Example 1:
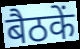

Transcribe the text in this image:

बैठकें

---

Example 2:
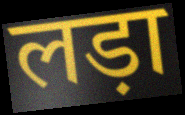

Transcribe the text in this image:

लड़ा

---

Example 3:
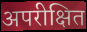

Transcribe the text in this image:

अपरीक्षित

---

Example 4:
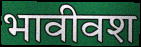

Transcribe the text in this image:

भावीवश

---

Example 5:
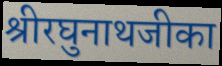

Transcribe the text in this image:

श्रीरघुनाथजीका